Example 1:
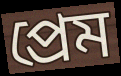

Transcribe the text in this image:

প্ৰেম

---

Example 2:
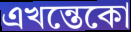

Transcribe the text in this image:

এখন্তেকো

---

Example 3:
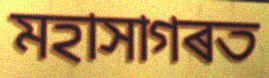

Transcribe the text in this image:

মহাসাগৰত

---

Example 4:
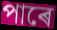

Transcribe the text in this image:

পাৰে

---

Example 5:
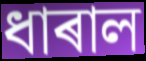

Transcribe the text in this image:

ধাৰাল